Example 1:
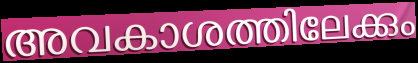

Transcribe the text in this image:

അവകാശത്തിലേക്കും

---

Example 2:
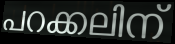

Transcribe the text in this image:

പറക്കലിന്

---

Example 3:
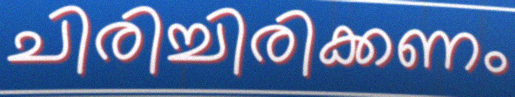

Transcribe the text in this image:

ചിരിച്ചിരിക്കണം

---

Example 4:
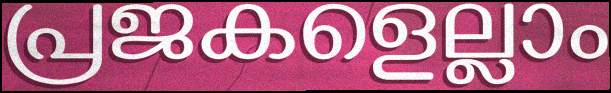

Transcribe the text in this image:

പ്രജകളെല്ലാം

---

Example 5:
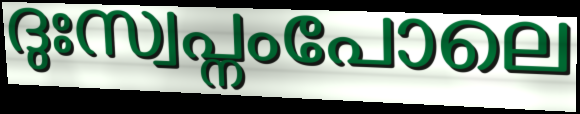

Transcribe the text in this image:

ദുഃസ്വപ്നംപോലെ